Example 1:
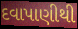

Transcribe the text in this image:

દવાપાણીથી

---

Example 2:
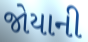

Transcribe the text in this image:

જોયાની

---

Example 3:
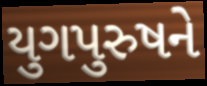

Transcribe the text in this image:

યુગપુરુષને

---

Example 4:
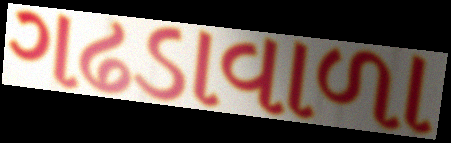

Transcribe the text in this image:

ગઢડાવાળા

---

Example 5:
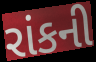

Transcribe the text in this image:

રાંકની